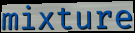
mixture